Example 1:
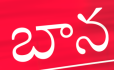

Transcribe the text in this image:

బాన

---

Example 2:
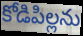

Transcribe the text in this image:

కోడిపిల్లను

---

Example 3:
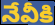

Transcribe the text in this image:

నేవీకి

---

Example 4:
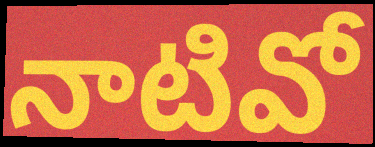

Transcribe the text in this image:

నాటివో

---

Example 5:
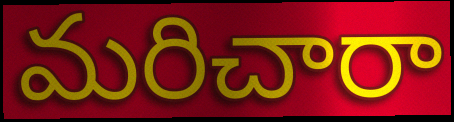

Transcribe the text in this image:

మరిచారా